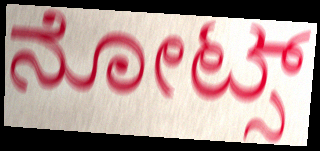
ನೋಟ್ಸ್